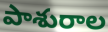
పాశురాల